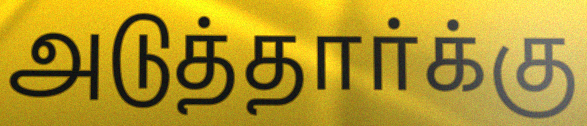
அடுத்தார்க்கு